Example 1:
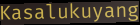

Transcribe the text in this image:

Kasalukuyang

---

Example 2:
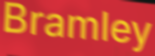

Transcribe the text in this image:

Bramley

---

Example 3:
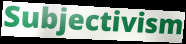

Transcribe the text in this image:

Subjectivism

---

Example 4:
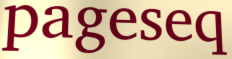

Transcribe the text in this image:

pageseq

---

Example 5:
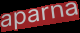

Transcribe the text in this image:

aparna